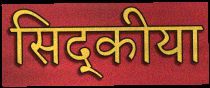
सिद्‌कीया